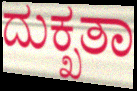
ದುಕ್ಖತಾ